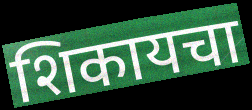
शिकायचा